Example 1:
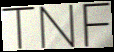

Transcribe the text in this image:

TNF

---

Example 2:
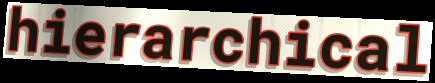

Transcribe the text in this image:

hierarchical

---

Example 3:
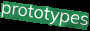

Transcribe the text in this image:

prototypes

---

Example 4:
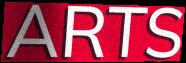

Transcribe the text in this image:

ARTS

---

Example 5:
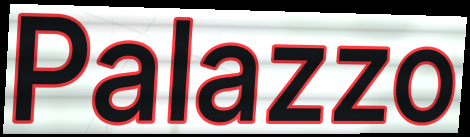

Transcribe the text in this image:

Palazzo